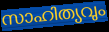
സാഹിത്യവും